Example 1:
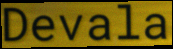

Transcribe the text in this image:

Devala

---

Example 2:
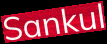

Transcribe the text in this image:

Sankul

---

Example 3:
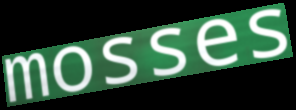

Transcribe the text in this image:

mosses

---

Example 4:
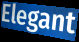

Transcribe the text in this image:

Elegant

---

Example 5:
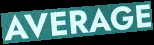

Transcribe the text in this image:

AVERAGE